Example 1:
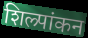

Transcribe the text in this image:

शिल्पांकन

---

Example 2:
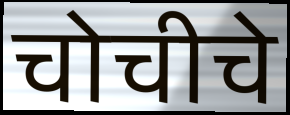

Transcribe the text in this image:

चोचीचे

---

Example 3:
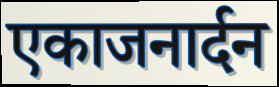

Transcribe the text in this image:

एकाजनार्दन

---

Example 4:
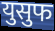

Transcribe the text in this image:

युसुफ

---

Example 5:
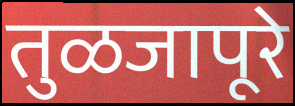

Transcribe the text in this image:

तुळजापूरे